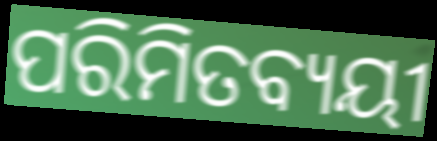
ପରିମିତବ୍ୟୟୀ